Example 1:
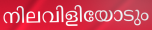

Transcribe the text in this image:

നിലവിളിയോടും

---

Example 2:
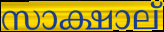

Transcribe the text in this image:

സാക്ഷാല്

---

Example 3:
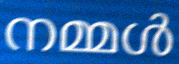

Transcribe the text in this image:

നമ്മൾ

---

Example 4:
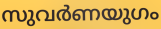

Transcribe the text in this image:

സുവർണയുഗം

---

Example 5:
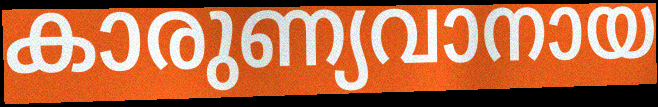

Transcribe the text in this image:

കാരുണ്യവാനായ